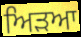
ਅਿੜਆ